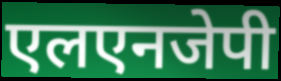
एलएनजेपी